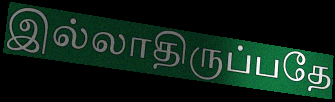
இல்லாதிருப்பதே